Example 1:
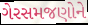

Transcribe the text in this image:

ગેરસમજણોને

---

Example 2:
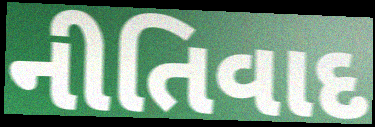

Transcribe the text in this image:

નીતિવાદ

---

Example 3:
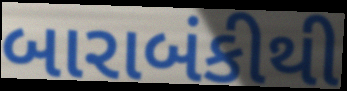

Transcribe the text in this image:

બારાબંકીથી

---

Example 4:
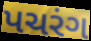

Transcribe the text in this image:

પચરંગ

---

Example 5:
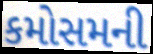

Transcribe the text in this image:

કમોસમની